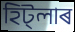
হিট্‌লাৰ